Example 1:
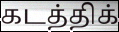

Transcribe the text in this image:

கடத்திக்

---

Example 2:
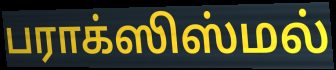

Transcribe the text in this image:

பராக்ஸிஸ்மல்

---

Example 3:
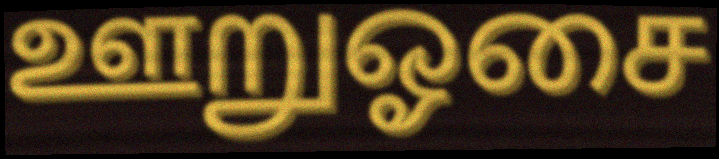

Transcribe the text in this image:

ஊறுஓசை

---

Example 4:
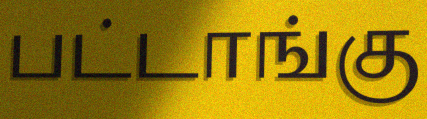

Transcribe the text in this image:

பட்டாங்கு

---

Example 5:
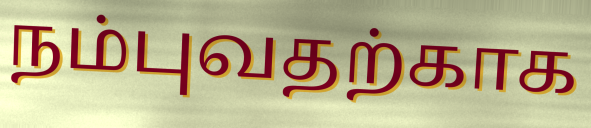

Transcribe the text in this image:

நம்புவதற்காக